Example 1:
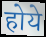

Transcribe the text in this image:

होये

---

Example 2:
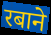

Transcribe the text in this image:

रबाने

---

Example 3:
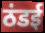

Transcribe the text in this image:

ठंडई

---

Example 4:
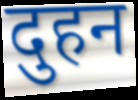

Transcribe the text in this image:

दुहन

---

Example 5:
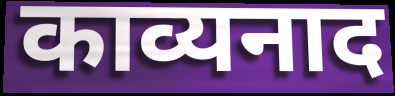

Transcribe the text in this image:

काव्यनाद